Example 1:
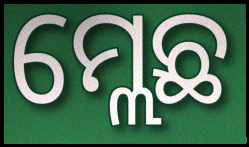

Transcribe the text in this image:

ମ୍ଲେଛ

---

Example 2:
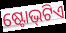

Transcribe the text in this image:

ଷ୍ଟୋଭ୍‌ଟିଏ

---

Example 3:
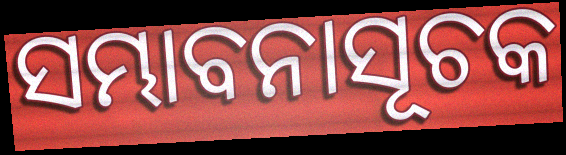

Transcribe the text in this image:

ସମ୍ଭାବନାସୂଚକ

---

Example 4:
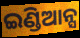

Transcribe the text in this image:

ଇଣ୍ଡିଆନ୍ସ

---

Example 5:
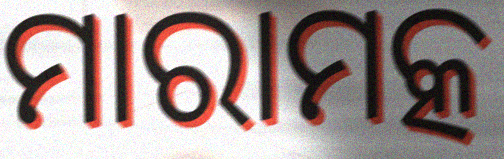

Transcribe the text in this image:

ମାରାମତ୍କ